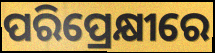
ପରିପ୍ରେକ୍ଷୀରେ